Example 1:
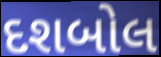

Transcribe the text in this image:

દશબોલ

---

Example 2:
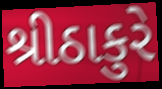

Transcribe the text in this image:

શ્રીઠાકુરે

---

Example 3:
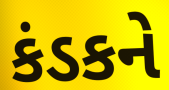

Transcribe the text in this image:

કંડકને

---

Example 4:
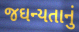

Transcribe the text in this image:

જઘન્યતાનું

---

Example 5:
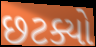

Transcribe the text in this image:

છટક્યો